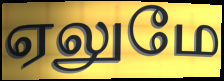
ஏலுமே